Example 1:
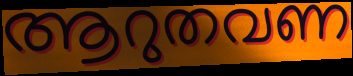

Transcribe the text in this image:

ആറുതവണ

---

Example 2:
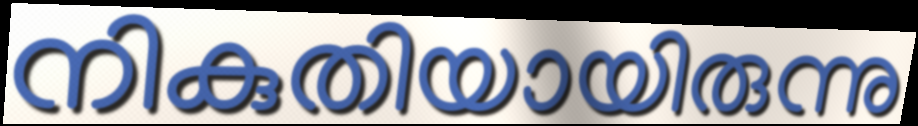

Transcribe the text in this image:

നികുതിയായിരുന്നു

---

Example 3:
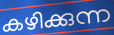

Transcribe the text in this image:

കഴിക്കുന്ന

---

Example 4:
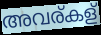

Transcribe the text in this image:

അവര്കള്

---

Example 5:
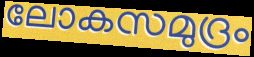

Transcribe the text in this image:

ലോകസമുദ്രം